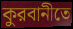
কুরবানীতে